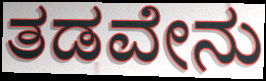
ತಡವೇನು